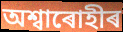
অশ্বাৰোহীৰ